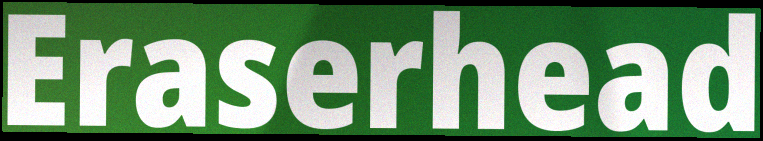
Eraserhead